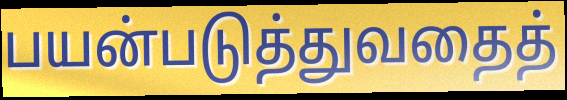
பயன்படுத்துவதைத்